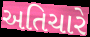
અતિચારે